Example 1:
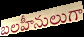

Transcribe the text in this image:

బలహీనులుగా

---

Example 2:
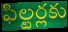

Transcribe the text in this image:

ఫిల్టర్లకు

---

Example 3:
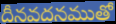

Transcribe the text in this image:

దీనవదనముతో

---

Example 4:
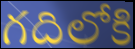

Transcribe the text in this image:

గదిలోకి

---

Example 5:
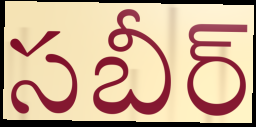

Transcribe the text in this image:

సబీర్